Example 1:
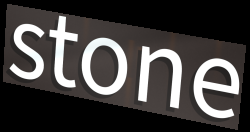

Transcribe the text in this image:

stone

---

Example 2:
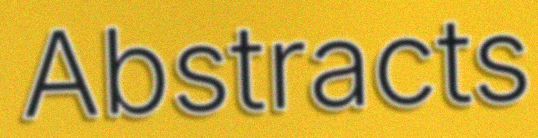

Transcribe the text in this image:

Abstracts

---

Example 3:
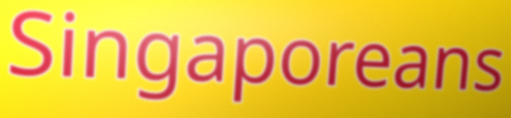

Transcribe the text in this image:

Singaporeans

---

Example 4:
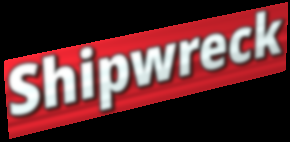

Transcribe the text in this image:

Shipwreck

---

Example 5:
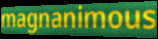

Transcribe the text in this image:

magnanimous